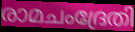
രാമചംദ്രേതി